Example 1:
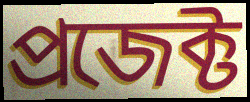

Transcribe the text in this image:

প্ৰজেক্ট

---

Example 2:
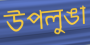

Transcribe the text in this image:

উপলুঙা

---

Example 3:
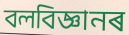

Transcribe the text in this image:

বলবিজ্ঞানৰ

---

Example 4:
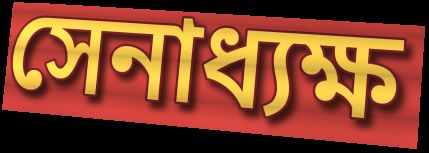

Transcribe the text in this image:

সেনাধ্যক্ষ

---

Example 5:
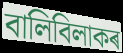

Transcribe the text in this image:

বালিবিলাকৰ